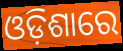
ଓଡ଼ିଶାରେ